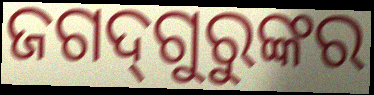
ଜଗଦ୍‌ଗୁରୁଙ୍କର